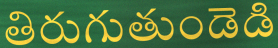
తిరుగుతుండెడి